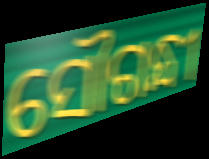
ସୌଗନ୍ଧୀ